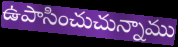
ఉపాసించుచున్నాము